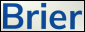
Brier